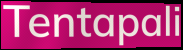
Tentapali